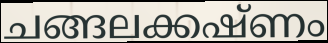
ചങ്ങലക്കഷ്ണം